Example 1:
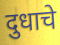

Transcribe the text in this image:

दुधाचे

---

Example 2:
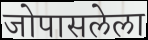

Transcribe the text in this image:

जोपासलेला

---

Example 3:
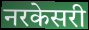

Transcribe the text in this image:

नरकेसरी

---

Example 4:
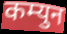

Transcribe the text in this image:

कम्युन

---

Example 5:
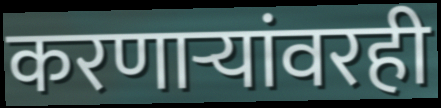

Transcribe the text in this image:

करणाऱ्यांवरही